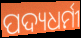
ପଦ୍ୟଧର୍ମୀ